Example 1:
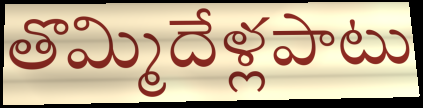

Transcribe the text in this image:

తొమ్మిదేళ్లపాటు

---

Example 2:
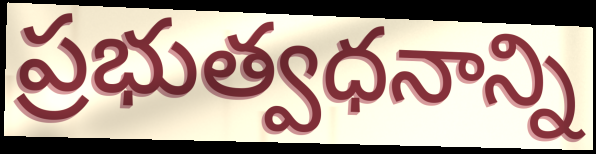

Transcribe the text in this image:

ప్రభుత్వధనాన్ని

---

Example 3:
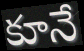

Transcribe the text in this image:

కూనే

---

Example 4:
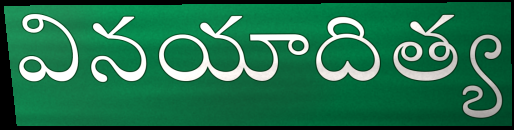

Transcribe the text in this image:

వినయాదిత్య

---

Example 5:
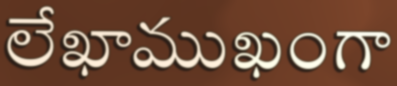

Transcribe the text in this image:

లేఖాముఖంగా